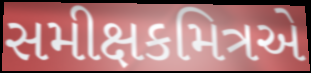
સમીક્ષકમિત્રએ